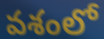
వశంలో